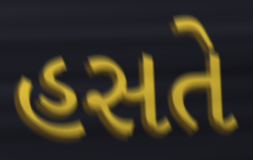
હસતે